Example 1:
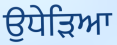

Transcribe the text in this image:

ਉਧੇੜਿਆ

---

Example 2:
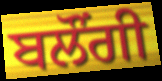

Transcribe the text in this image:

ਬਲੌਂਗੀ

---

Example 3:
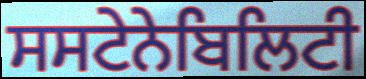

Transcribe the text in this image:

ਸਸਟੇਨੇਬਿਲਿਟੀ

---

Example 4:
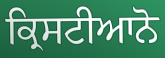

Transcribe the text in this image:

ਕ੍ਰਿਸਟੀਆਨੋ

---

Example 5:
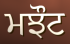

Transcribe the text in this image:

ਮਝੌਟ